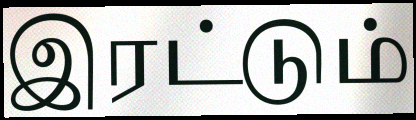
இரட்டும்